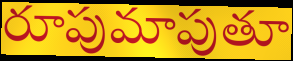
రూపుమాపుతూ